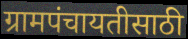
ग्रामपंचायतीसाठी